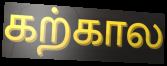
கற்கால